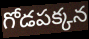
గోడపక్కన